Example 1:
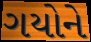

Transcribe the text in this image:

ગયોને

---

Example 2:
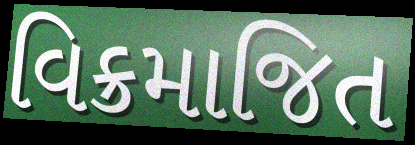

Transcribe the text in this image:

વિક્રમાજિત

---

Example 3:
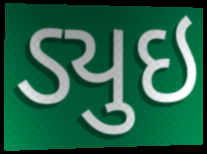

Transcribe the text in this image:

ડ્યુઇ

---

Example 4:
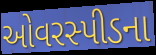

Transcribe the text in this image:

ઓવરસ્પીડના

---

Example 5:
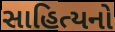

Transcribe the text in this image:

સાહિત્યનો